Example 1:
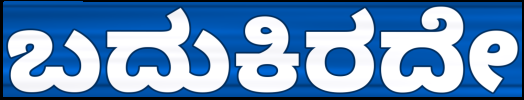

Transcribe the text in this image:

ಬದುಕಿರದೇ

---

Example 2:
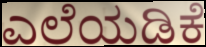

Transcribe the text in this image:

ಎಲೆಯಡಿಕೆ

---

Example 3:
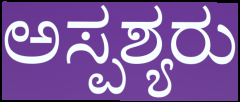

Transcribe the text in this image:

ಅಸ್ಪಶ್ಯರು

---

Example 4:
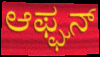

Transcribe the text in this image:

ಆಫ್ಘನ್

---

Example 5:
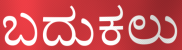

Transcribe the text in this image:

ಬದುಕಲು